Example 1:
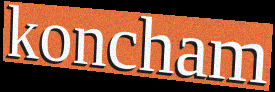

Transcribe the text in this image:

koncham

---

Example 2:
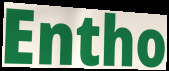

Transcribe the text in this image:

Entho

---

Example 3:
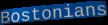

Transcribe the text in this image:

Bostonians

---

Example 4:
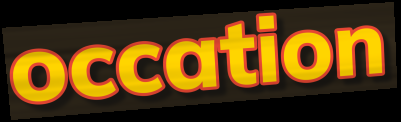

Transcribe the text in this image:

occation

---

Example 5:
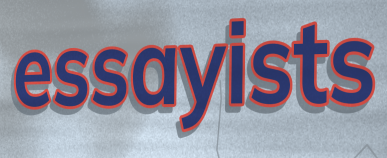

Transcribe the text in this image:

essayists